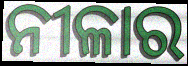
ନୀଳାର